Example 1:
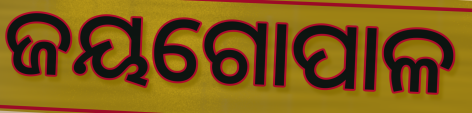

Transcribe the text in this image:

ଜୟଗୋପାଳ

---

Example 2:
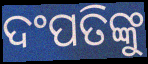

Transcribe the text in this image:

ଦଂପତିଙ୍କୁ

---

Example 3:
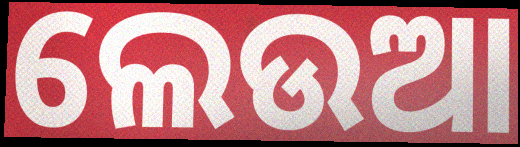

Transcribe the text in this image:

ଲେଉଆ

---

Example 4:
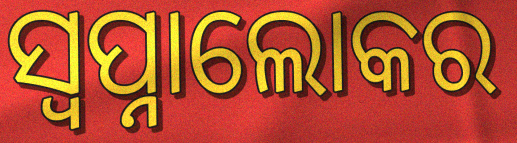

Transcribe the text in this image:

ସ୍ୱପ୍ନାଲୋକର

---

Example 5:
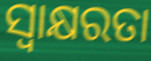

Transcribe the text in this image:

ସ୍ବାକ୍ଷରତା